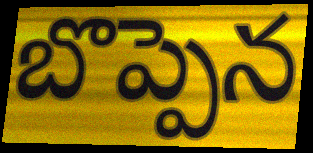
బొప్పెన